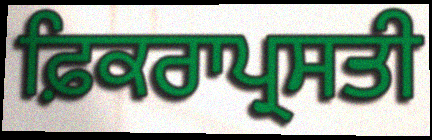
ਫ਼ਿਕਰਾਪ੍ਰਸਤੀ